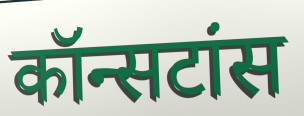
कॉन्सटांस